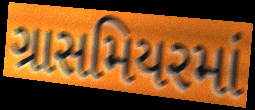
ગ્રાસમિયરમાં